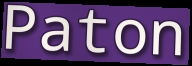
Paton